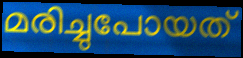
മരിച്ചുപോയത്